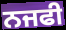
ਨਜਫੀ